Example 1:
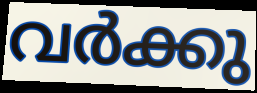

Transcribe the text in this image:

വർക്കു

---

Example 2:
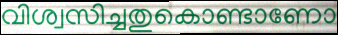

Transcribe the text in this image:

വിശ്വസിച്ചതുകൊണ്ടാണോ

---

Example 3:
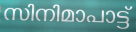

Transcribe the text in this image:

സിനിമാപാട്ട്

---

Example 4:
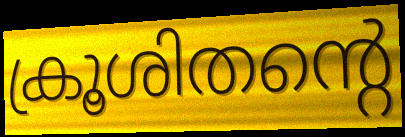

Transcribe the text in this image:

ക്രൂശിതന്റെ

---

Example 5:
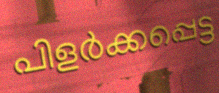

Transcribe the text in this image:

പിളർക്കപ്പെട്ട